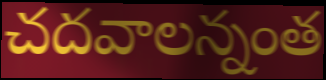
చదవాలన్నంత